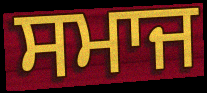
ਸਮਾਜ